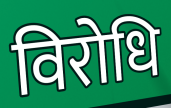
विरोधि